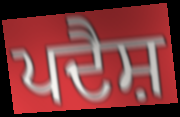
ਪਦੈਸ਼